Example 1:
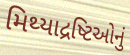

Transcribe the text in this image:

મિથ્યાદ્રષ્ટિઓનું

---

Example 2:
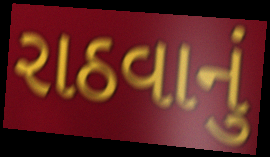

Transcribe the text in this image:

રાઠવાનું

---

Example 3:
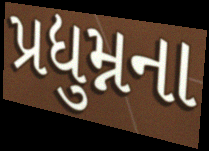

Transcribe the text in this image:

પ્રદ્યુમ્નના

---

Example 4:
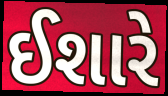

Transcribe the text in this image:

ઈશારે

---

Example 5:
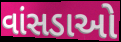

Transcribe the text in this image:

વાંસડાઓ